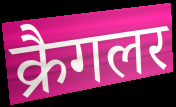
क्रैगलर